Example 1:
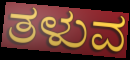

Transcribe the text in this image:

ತಳುವ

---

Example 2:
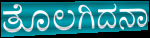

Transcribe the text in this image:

ತೊಲಗಿದನಾ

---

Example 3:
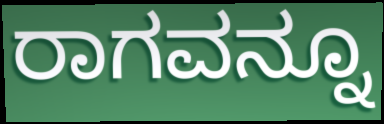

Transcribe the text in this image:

ರಾಗವನ್ನೂ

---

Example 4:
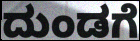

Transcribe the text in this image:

ದುಂಡಗೆ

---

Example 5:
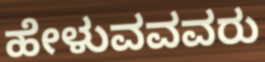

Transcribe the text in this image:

ಹೇಳುವವವರು